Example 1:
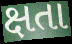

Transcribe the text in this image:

ક્ષતા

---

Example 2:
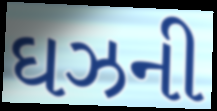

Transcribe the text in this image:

ઘઝની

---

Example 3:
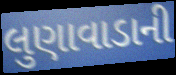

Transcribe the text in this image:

લુણાવાડાની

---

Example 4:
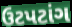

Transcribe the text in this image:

ઉટપટાંગ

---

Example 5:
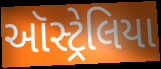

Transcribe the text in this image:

ઑસ્ટ્રેલિયા